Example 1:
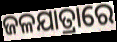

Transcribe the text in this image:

ଜଳଯାତ୍ରାରେ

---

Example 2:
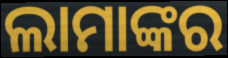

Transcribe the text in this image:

ଲାମାଙ୍କର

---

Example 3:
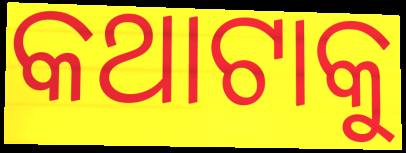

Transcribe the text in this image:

କଥାଟାକୁ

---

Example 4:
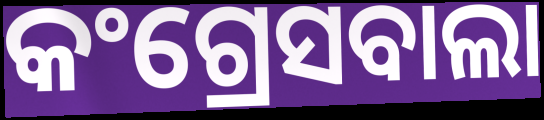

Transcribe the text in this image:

କଂଗ୍ରେସବାଲା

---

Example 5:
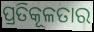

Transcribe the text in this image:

ପ୍ରତିକୂଳତାର